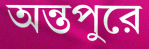
অন্তপুরে